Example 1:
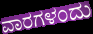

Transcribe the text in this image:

ವಾರಗಳಂದು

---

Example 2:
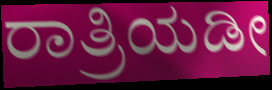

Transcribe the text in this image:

ರಾತ್ರಿಯಡೀ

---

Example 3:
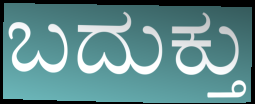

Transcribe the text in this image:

ಬದುಕ್ತು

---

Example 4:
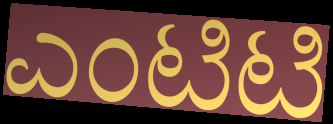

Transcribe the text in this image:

ಎಂಟಿಟಿ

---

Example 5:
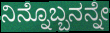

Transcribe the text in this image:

ನಿನ್ನೊಬ್ಬನನ್ನೇ